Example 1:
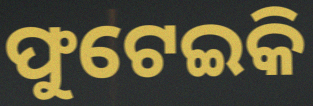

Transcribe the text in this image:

ଫୁଟେଇକି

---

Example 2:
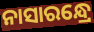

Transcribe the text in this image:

ନାସାରନ୍ଧ୍ରେ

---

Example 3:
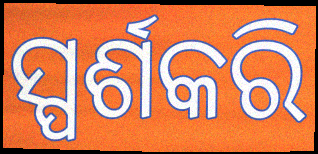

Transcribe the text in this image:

ସ୍ପର୍ଶକରି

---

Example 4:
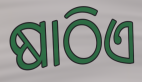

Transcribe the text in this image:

ଷାଠିଏ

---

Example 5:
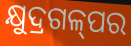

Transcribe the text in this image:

କ୍ଷୁଦ୍ରଗଳ୍‌ପର